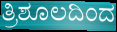
ತ್ರಿಶೂಲದಿಂದ